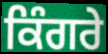
ਕਿੰਗਰੇ